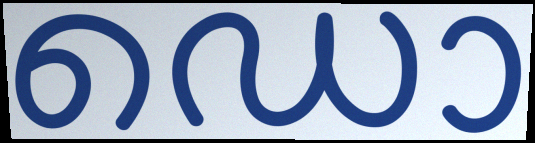
ഡൊ